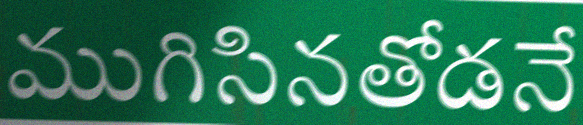
ముగిసినతోడనే